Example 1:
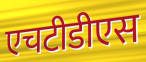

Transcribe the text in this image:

एचटीडीएस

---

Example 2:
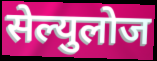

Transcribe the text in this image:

सेल्युलोज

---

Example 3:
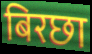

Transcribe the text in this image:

बिरछा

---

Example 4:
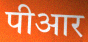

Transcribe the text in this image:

पीआर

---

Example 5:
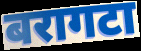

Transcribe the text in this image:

बरागटा